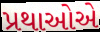
પ્રથાઓએ